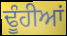
ਢੂੰਹੀਆਂ